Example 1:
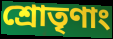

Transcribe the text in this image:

শ্রোতৃণাং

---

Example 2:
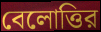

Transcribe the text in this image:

বেলোত্তির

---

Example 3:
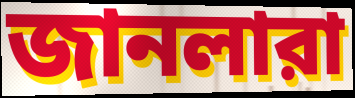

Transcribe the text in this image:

জানলারা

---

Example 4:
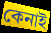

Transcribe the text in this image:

কেনাই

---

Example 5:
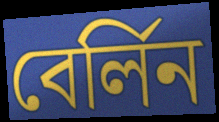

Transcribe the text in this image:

বের্লিন